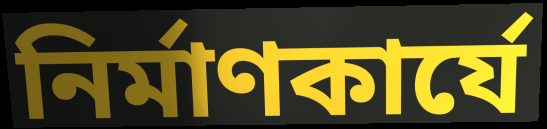
নির্মাণকার্যে